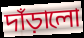
দাঁড়ালো